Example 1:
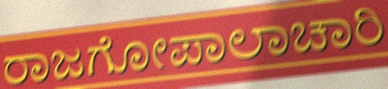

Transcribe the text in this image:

ರಾಜಗೋಪಾಲಾಚಾರಿ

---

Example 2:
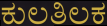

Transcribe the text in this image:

ಕುಲತಿಲಕ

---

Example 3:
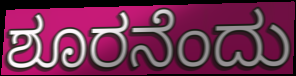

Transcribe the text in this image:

ಶೂರನೆಂದು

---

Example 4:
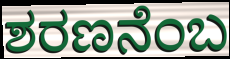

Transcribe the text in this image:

ಶರಣನೆಂಬ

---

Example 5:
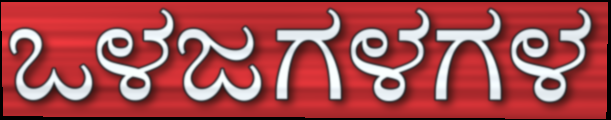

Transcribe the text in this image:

ಒಳಜಗಳಗಳ